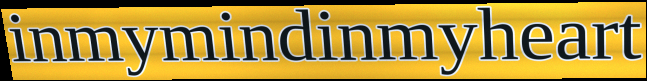
inmymindinmyheart